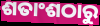
ଶତାଂଶଠାରୁ